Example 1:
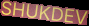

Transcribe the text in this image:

SHUKDEV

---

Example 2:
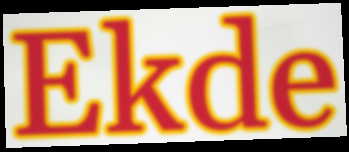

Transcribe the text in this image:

Ekde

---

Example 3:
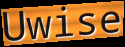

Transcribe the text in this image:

Uwise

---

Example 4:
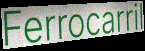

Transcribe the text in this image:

Ferrocarril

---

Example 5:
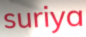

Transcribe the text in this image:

suriya